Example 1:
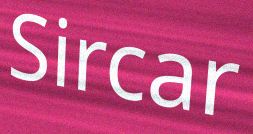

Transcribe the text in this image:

Sircar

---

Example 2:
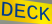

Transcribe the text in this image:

DECK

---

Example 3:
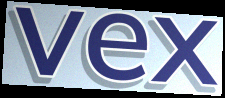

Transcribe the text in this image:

vex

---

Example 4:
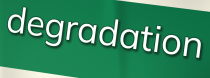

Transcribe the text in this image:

degradation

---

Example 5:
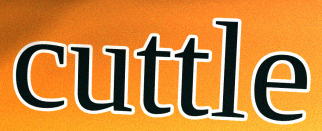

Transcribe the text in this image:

cuttle